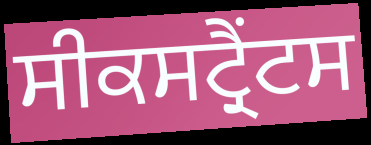
ਸੀਕਸਟ੍ਰੈਂਟਸ